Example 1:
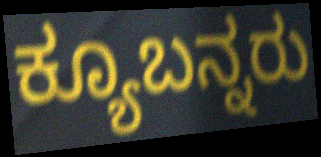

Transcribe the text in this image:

ಕ್ಯೂಬನ್ನರು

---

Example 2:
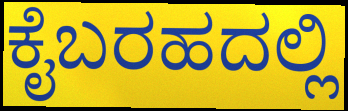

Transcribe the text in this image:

ಕೈಬರಹದಲ್ಲಿ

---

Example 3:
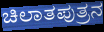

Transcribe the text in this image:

ಚಿಲಾತಪುತ್ರನ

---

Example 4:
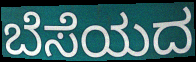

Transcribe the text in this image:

ಬೆಸೆಯದ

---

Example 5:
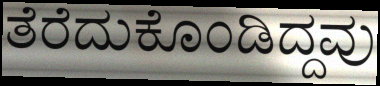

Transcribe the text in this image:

ತೆರೆದುಕೊಂಡಿದ್ದವು